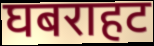
घबराहट